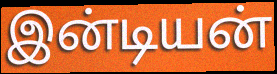
இன்டியன்